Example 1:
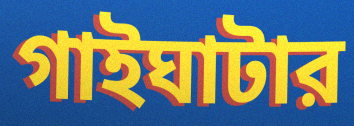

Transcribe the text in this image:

গাইঘাটার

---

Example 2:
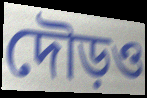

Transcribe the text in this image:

দৌড়ও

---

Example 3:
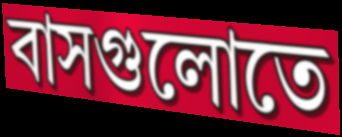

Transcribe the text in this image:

বাসগুলোতে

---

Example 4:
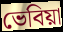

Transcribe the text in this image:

ভেবিয়া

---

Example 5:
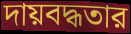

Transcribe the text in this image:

দায়বদ্ধতার